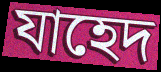
যাহেদ